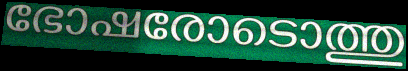
ഭോഷരോടൊത്തു